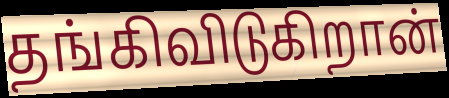
தங்கிவிடுகிறான்